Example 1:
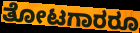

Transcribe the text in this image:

ತೋಟಗಾರರೂ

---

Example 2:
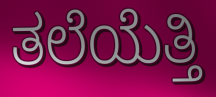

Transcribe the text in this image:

ತಲೆಯೆತ್ತಿ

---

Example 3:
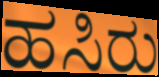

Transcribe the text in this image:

ಹಸಿರು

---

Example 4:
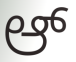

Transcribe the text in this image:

ಆ್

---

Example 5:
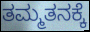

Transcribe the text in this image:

ತಮ್ಮತನಕ್ಕೆ